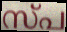
സ്പ